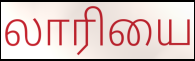
லாரியை